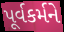
પૂર્વકર્મને